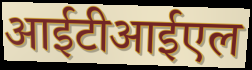
आईटीआईएल